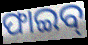
ଫାଇବ୍